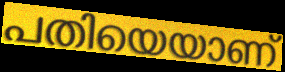
പതിയെയാണ്